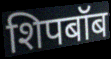
शिपबॉब